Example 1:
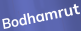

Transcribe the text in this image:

Bodhamrut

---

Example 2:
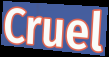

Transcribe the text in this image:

Cruel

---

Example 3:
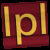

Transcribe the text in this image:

Ipl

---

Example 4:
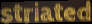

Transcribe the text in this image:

striated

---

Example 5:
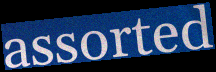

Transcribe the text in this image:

assorted